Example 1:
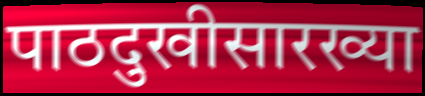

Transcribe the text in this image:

पाठदुखीसारख्या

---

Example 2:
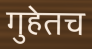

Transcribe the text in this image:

गुहेतच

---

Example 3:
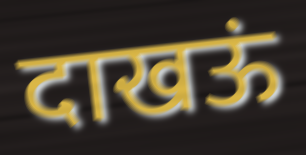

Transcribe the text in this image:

दाखऊं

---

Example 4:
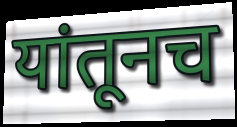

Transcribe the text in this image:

यांतूनच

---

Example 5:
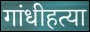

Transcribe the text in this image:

गांधीहत्या